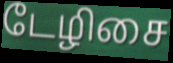
டேழிசை